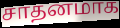
சாதனமாக